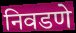
निवडणे